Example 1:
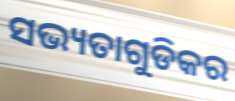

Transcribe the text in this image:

ସଭ୍ୟତାଗୁଡିକର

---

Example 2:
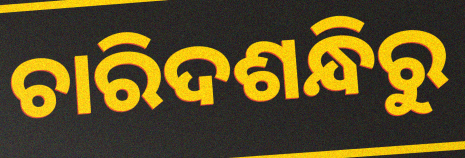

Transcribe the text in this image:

ଚାରିଦଶନ୍ଧିରୁ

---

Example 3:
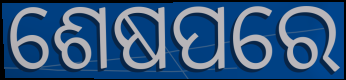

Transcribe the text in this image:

ଶେଷପରେ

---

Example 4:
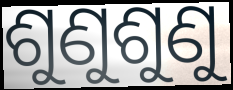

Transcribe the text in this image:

ଶୁଣୁଶୁଣୁ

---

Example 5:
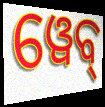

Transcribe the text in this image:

ୱେବ୍